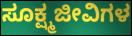
ಸೂಕ್ಷ್ಮಜೀವಿಗಳ